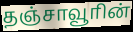
தஞ்சாவூரின்